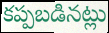
కప్పబడినట్లు